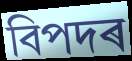
বিপদৰ